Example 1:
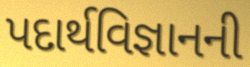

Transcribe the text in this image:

પદાર્થવિજ્ઞાનની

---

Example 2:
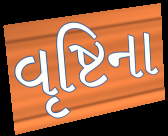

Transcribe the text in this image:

વૃષ્ટિના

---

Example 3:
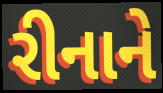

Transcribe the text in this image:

રીનાને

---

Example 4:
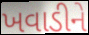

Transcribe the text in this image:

ખવાડીને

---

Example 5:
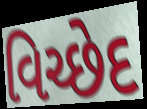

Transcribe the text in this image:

વિચ્છેદ